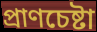
প্রাণচেষ্টা